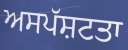
ਅਸਪੱਸ਼ਟਤਾ